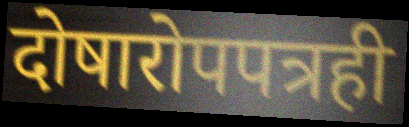
दोषारोपपत्रही